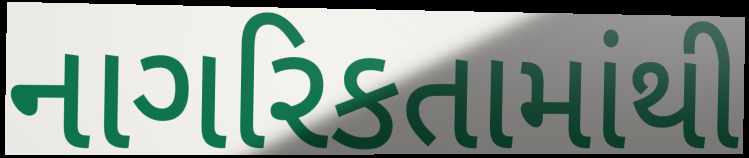
નાગરિકતામાંથી